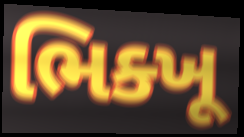
ભિક્ખૂ